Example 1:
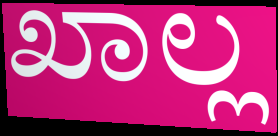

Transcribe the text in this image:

ಖಾಲ್ಲ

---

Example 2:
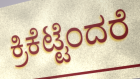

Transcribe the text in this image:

ಕ್ರಿಕೆಟ್ಟೆಂದರೆ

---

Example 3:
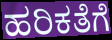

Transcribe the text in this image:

ಹರಿಕತೆಗೆ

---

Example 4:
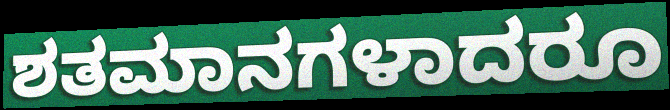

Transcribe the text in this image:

ಶತಮಾನಗಳಾದರೂ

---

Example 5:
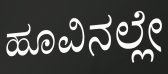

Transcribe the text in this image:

ಹೂವಿನಲ್ಲೇ